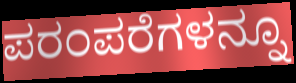
ಪರಂಪರೆಗಳನ್ನೂ